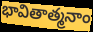
భావితాత్మనాం